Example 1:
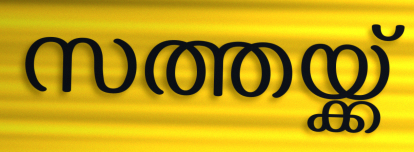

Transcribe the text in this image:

സത്തയ്ക്ക്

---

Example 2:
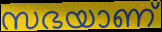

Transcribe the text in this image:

സഭയാണ്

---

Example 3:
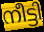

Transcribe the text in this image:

നീട്ടി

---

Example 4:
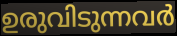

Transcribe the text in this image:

ഉരുവിടുന്നവർ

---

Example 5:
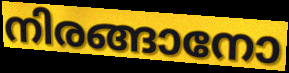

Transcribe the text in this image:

നിരങ്ങാനോ